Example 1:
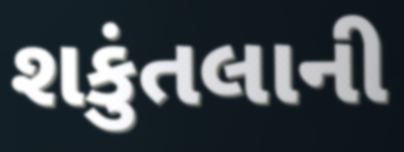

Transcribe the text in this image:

શકુંતલાની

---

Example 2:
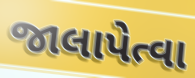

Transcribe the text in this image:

જાલાપેત્વા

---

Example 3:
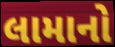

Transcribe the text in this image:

લામાનો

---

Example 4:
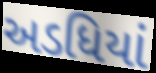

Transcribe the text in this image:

અડધિયાં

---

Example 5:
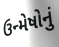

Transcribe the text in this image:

ઉન્મેષોનું